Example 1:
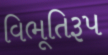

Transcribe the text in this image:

વિભૂતિરૂપ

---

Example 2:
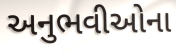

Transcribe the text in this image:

અનુભવીઓના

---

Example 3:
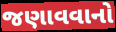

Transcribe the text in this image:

જણાવવાનો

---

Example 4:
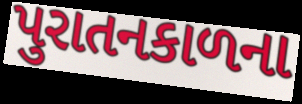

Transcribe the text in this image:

પુરાતનકાળના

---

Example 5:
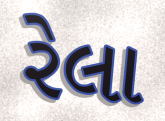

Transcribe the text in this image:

રેલા